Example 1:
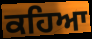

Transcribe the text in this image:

ਕਹਿਆ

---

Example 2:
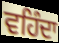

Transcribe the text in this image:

ਵਹਿੰਦਾ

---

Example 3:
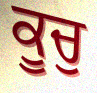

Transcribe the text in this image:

ਕੂਚੁ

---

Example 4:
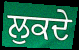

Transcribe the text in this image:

ਲੁਕਦੇ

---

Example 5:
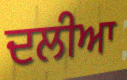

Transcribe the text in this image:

ਦਲੀਆ